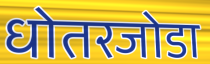
धोतरजोडा